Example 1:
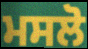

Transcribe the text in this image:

ਮਸਲੋ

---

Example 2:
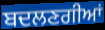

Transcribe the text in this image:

ਬਦਲਣਗੀਆਂ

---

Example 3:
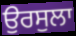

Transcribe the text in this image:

ਉਰਸੁਲਾ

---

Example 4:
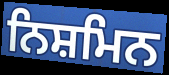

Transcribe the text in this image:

ਨਿਸ਼ਮਿਨ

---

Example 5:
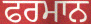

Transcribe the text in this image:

ਫਰਮਾਨ